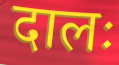
दालः